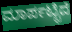
ಮಾರ್ಪಟ್ಟಿದೆ